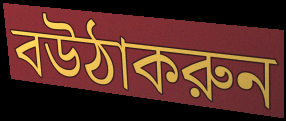
বউঠাকরুন